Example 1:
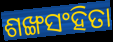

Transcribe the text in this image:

ଶଙ୍ଖସଂହିତା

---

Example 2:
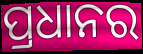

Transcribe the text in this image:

ପ୍ରଧାନର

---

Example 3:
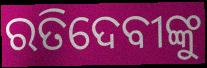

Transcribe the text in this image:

ରତିଦେବୀଙ୍କୁ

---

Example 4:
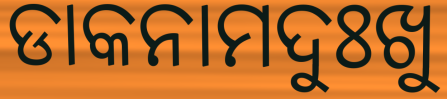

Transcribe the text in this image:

ଡାକନାମଦୁଃଖୁ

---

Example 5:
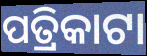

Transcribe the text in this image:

ପତ୍ରିକାଟା